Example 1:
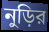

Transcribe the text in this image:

নুড়ির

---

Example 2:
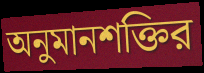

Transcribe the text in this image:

অনুমানশক্তির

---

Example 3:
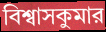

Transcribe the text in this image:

বিশ্বাসকুমার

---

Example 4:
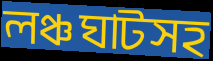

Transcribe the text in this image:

লঞ্চঘাটসহ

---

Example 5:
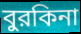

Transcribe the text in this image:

বুরকিনা